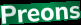
Preons